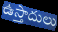
ఉస్తాదులు